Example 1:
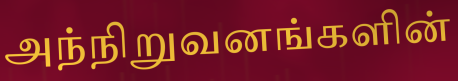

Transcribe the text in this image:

அந்நிறுவனங்களின்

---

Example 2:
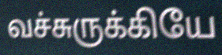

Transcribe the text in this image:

வச்சுருக்கியே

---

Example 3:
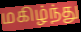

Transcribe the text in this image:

மகிழ்ந்து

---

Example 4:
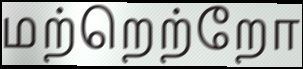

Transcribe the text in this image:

மற்றெற்றோ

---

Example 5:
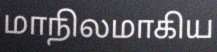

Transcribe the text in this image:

மாநிலமாகிய